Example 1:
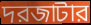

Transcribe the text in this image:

দরজাটার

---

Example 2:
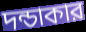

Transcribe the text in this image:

দন্ডাকার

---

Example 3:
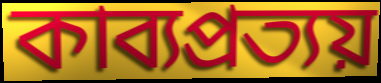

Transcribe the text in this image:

কাব্যপ্রত্যয়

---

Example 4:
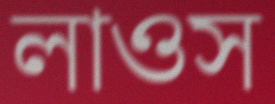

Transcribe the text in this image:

লাওস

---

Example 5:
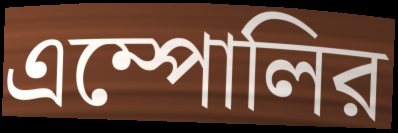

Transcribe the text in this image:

এম্পোলির